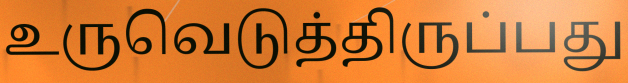
உருவெடுத்திருப்பது